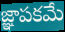
జ్ఞాపకమే